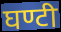
घण्टी